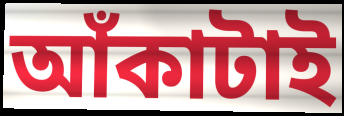
আঁকাটাই